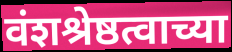
वंशश्रेष्ठत्वाच्या